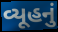
વ્યૂહનું